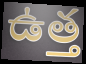
ఉత్త